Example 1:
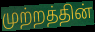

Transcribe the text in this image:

முற்றத்தின்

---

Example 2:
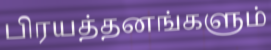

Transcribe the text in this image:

பிரயத்தனங்களும்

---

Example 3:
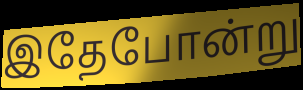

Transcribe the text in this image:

இதேபோன்று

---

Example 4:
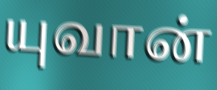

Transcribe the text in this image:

யுவான்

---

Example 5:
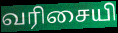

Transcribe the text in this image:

வரிசையி